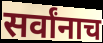
सर्वांनाच